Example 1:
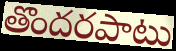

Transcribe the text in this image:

తొందరపాటు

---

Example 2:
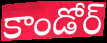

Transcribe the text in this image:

కాండోర్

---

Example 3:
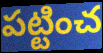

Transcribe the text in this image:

పట్టించ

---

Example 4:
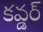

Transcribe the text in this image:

కవ్డర్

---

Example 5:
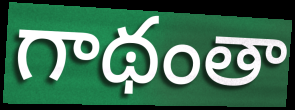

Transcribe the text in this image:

గాథంతా